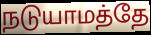
நடுயாமத்தே